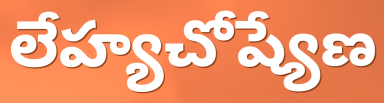
లేహ్యచోష్యేణ